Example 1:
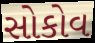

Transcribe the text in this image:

સોકોવ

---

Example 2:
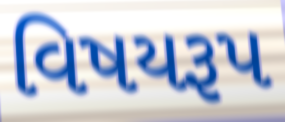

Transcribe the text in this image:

વિષયરૂપ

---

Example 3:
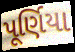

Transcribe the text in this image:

પૂર્ણિયા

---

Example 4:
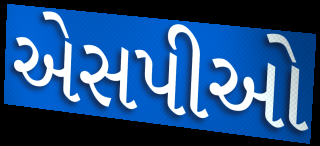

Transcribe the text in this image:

એસપીઓ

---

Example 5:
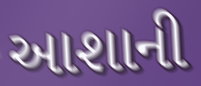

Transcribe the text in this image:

આશાની